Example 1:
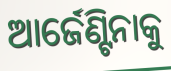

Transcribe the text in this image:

ଆର୍ଜେଣ୍ଟିନାକୁ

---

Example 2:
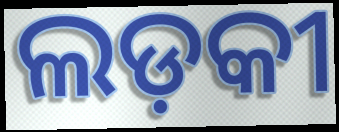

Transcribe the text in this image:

ଲଡ଼କୀ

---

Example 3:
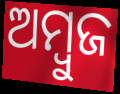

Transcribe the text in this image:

ଅମ୍ବୁଜ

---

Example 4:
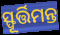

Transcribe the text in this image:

ସ୍ଫୂର୍ତ୍ତିମନ୍ତ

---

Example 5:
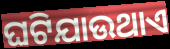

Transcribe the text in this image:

ଘଟିଯାଉଥାଏ